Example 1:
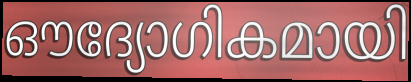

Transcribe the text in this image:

ഔദ്യോഗികമായി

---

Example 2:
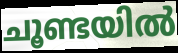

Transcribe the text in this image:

ചൂണ്ടയിൽ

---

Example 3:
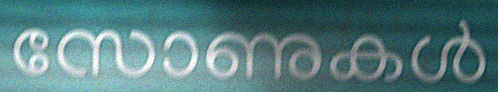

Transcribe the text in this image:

സോണുകൾ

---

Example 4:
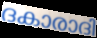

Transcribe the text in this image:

ദകാരാദി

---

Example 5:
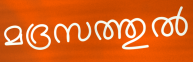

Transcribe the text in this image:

മദ്രസത്തുൽ